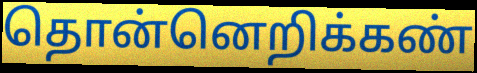
தொன்னெறிக்கண்